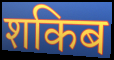
शकिब